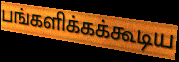
பங்களிக்கக்கூடிய